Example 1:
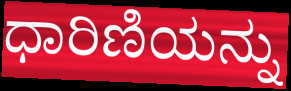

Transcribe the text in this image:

ಧಾರಿಣಿಯನ್ನು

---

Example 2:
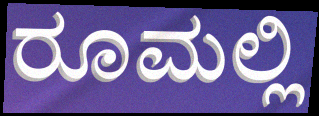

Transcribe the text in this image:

ರೂಮಲ್ಲಿ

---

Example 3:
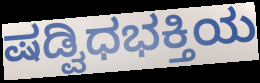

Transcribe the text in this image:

ಷಡ್ವಿಧಭಕ್ತಿಯ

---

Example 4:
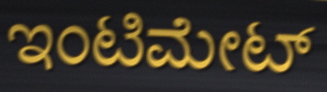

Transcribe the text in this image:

ಇಂಟಿಮೇಟ್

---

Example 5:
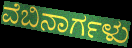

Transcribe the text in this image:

ವೆಬಿನಾರ್ಗಳು